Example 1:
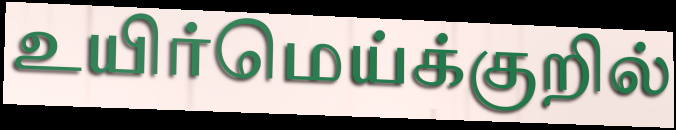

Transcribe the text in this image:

உயிர்மெய்க்குறில்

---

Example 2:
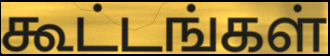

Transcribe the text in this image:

கூட்டங்கள்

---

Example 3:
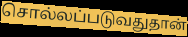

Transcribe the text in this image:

சொல்லப்படுவதுதான்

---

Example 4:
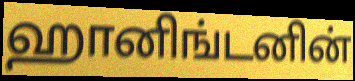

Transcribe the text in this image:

ஹானிங்டனின்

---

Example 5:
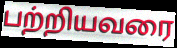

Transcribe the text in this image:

பற்றியவரை